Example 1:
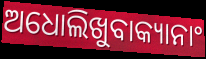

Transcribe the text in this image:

ଅଧୋଲିଖୁବାକ୍ୟାନାଂ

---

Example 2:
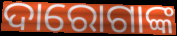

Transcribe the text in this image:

ଦାରୋଗାଙ୍କ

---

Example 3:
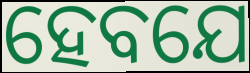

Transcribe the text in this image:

ହେବଯେ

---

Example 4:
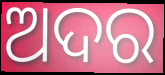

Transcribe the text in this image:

ଅଦର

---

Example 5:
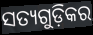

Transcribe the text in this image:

ସତ୍ୟଗୁଡ଼ିକର